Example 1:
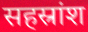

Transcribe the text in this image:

सहस्रांश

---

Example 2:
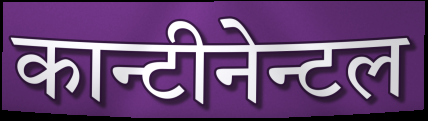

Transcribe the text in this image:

कान्टीनेन्टल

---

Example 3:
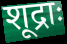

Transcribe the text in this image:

शूद्राः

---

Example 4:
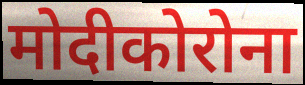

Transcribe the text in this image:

मोदीकोरोना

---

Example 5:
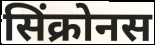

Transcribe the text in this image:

सिंक्रोनस